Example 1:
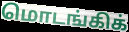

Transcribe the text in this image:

மொடங்கிக்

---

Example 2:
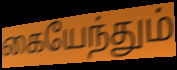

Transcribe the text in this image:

கையேந்தும்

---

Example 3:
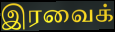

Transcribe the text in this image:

இரவைக்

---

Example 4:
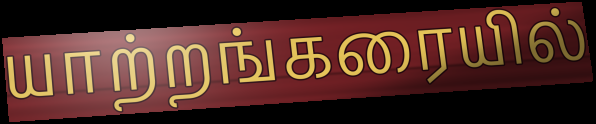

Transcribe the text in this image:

யாற்றங்கரையில்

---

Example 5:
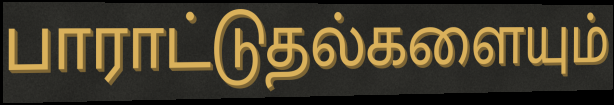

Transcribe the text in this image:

பாராட்டுதல்களையும்